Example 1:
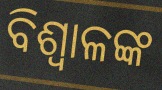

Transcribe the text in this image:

ବିଶ୍ୱାଳଙ୍କ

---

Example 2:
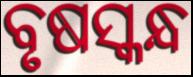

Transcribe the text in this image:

ବୃଷସ୍କନ୍ଧ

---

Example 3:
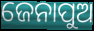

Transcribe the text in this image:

ଜେନାପୁଅ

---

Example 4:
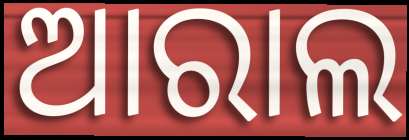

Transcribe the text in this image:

ଆରାଲ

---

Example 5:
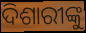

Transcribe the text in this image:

ଦିଶାରୀଙ୍କୁ